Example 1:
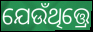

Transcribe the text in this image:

ଯେଉଁଥିତ୍ତ୍ରେ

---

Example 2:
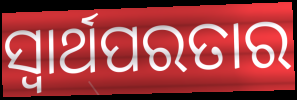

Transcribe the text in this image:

ସ୍ଵାର୍ଥପରତାର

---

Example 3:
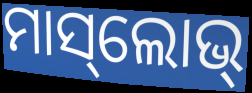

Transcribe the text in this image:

ମାସ୍‌ଲୋଭ୍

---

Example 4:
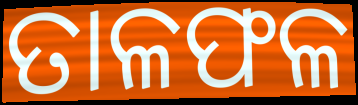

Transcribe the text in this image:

ତାଳଫଳ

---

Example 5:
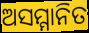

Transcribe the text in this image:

ଅସମ୍ମାନିତ